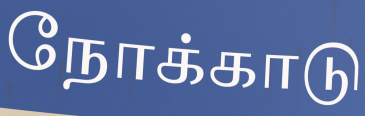
நோக்காடு